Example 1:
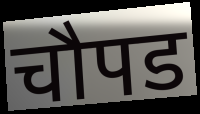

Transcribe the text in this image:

चौपड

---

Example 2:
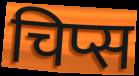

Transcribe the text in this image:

चिप्‍स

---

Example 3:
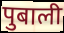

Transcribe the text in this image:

पुबाली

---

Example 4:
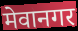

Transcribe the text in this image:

मेवानगर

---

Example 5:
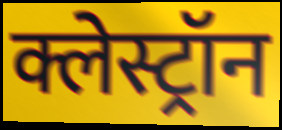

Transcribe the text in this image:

क्लेस्ट्रॉन